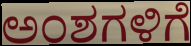
ಅಂಶಗಳಿಗೆ